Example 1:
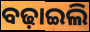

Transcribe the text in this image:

ବଢ଼ାଇଲି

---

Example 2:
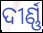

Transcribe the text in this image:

ଦୀର୍ଣ୍ଣ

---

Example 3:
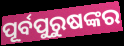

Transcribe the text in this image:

ପୂର୍ବପୁରୁଷଙ୍କର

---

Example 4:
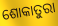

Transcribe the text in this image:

ଶୋକାତୁରା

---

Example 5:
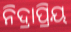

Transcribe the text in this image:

ନିଦ୍ରାପ୍ରିୟ